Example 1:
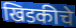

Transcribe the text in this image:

खिडकीचे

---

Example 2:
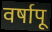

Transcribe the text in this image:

वर्षापू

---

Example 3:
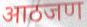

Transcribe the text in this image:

आठजण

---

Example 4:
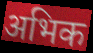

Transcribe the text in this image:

अभिक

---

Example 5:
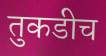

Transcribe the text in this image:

तुकडीच